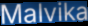
Malvika